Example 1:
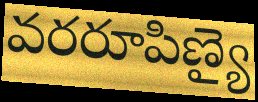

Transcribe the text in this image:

వరరూపిణ్యై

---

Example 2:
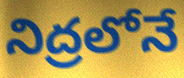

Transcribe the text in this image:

నిద్రలోనే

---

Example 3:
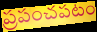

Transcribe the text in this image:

ప్రపంచపటం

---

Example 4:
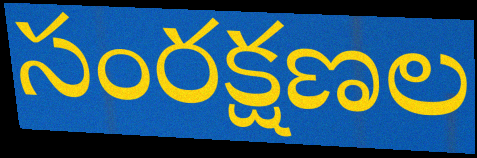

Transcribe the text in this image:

సంరక్షణల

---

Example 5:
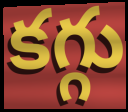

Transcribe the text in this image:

కగ్గు